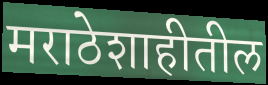
मराठेशाहीतील